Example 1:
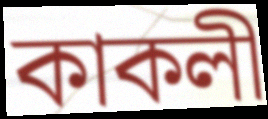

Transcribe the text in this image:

কাকলী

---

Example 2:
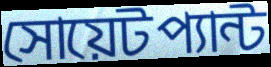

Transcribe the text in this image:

সোয়েটপ্যান্ট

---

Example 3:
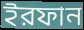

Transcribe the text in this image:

ইরফান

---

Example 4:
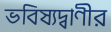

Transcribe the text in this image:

ভবিষ্যদ্বাণীর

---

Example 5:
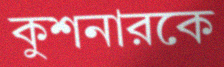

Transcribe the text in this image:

কুশনারকে